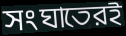
সংঘাতেরই